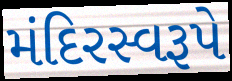
મંદિરસ્વરૂપે